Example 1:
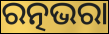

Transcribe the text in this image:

ରତ୍ନଭରା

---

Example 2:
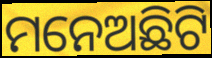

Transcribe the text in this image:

ମନେଅଛିଟି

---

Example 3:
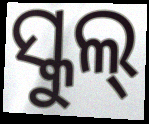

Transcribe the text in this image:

ସ୍କୁଲ୍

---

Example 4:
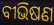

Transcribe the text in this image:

ବୀଭିଷଣ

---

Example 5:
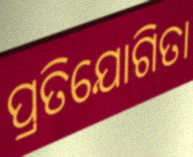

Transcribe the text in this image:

ପ୍ରତିଯୋଗିତା